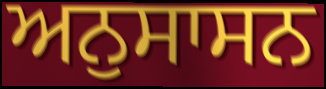
ਅਨੁਸਾਸਨ